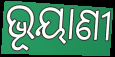
ଭୂୟାଣୀ